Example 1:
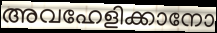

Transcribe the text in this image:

അവഹേളിക്കാനോ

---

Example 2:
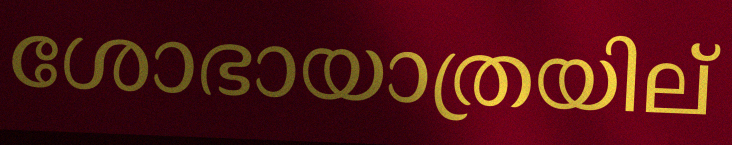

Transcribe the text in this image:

ശോഭായാത്രയില്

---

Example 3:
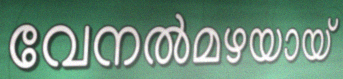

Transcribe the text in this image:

വേനൽമഴയായ്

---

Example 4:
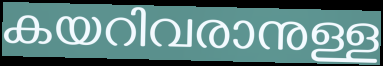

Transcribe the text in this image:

കയറിവരാനുള്ള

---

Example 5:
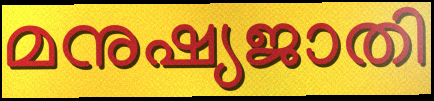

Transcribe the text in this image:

മനുഷ്യജാതി